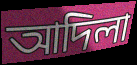
আদিলা